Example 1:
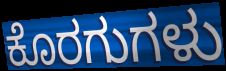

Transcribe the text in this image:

ಕೊರಗುಗಳು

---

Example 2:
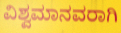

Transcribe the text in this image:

ವಿಶ್ವಮಾನವರಾಗಿ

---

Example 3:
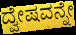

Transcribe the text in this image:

ದ್ವೇಷವನ್ನೇ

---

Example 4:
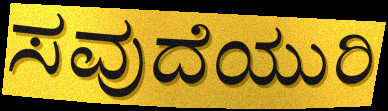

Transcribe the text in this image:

ಸವುದೆಯುರಿ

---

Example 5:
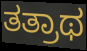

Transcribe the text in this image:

ತತ್ರಾಥ